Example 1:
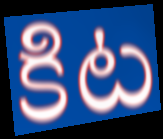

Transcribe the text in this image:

కిట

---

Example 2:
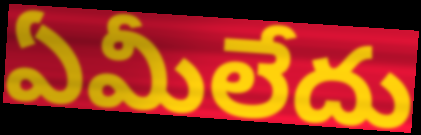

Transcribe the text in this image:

ఏమీలేదు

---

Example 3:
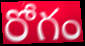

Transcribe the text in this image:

రోగం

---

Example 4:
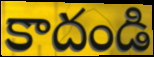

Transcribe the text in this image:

కాదండి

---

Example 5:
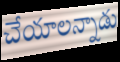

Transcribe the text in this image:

చేయాలన్నాడు